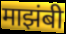
माझंबी